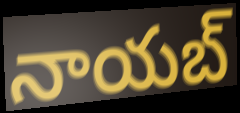
నాయబ్